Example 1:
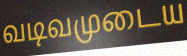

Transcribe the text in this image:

வடிவமுடைய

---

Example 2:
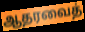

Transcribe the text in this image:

ஆதரவைத்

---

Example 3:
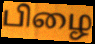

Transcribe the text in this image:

பிழை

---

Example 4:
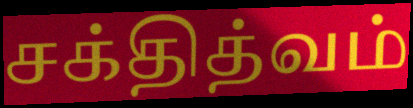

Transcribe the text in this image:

சக்தித்வம்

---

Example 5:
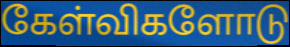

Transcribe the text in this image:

கேள்விகளோடு